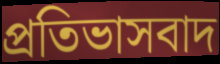
প্রতিভাসবাদ